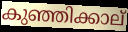
കുഞ്ഞിക്കാല്